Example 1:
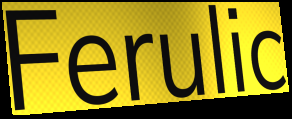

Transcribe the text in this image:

Ferulic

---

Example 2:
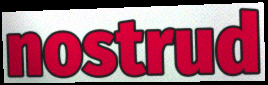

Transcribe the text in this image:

nostrud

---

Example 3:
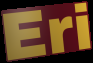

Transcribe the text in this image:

Eri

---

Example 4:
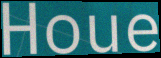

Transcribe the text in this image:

Houe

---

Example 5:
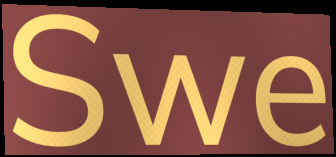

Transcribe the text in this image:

Swe